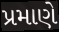
પ્રમાણે